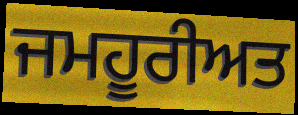
ਜਮਹੂਰੀਅਤ